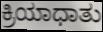
ಕ್ರಿಯಾಧಾತು